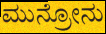
ಮುನ್ರೋನು